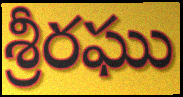
శ్రీరఘు